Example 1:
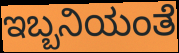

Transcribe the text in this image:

ಇಬ್ಬನಿಯಂತೆ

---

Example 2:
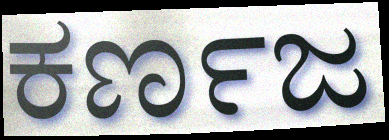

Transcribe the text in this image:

ಕರ್ಣಜ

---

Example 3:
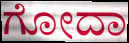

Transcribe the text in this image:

ಗೋದಾ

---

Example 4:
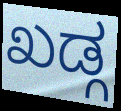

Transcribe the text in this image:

ಖಡ್ಗ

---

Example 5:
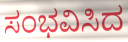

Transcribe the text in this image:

ಸಂಭವಿಸಿದ